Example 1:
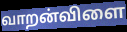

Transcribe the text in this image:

வாறன்விளை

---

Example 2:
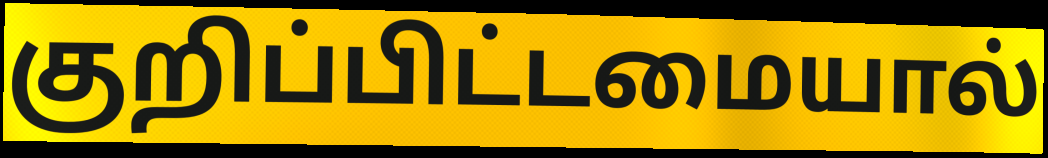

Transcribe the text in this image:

குறிப்பிட்டமையால்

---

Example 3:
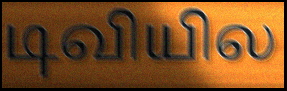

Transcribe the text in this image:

டிவியில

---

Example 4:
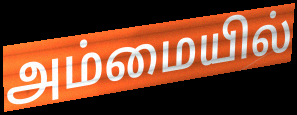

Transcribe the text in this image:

அம்மையில்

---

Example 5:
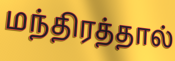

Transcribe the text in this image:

மந்திரத்தால்